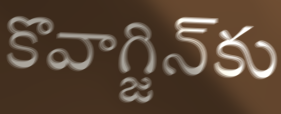
కొవాగ్జిన్‌కు